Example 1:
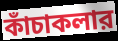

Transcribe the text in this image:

কাঁচাকলার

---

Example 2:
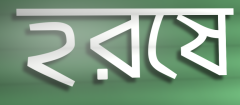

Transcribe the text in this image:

হরষে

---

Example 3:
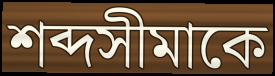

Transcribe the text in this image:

শব্দসীমাকে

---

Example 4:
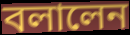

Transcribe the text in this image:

বলালেন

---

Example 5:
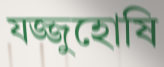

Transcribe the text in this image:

যজ্জুহোষি